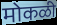
मोकळी